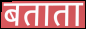
बताता